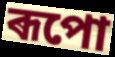
ৰূপো